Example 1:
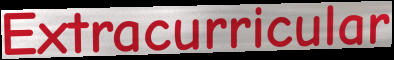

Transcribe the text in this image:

Extracurricular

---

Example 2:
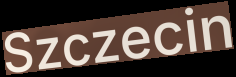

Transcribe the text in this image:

Szczecin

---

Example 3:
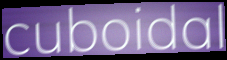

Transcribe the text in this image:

cuboidal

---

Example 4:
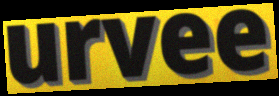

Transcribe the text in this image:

urvee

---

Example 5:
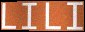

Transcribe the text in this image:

LILI